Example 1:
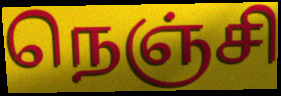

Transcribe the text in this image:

நெஞ்சி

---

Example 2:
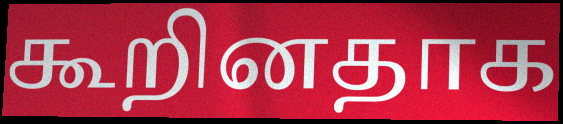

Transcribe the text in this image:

கூறினதாக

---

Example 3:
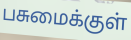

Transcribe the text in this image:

பசுமைக்குள்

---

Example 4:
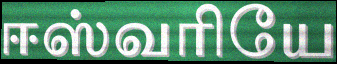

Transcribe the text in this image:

ஈஸ்வரியே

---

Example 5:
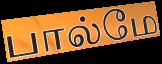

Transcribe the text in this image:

பால்மே